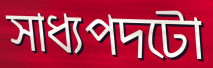
সাধ্যপদটো